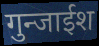
गुन्जाईश